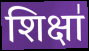
शिक्षा॑